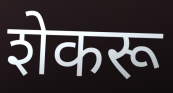
शेकरू